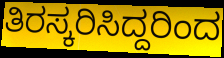
ತಿರಸ್ಕರಿಸಿದ್ದರಿಂದ